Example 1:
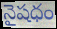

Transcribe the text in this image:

నైషధం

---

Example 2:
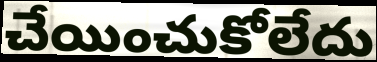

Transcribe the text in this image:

చేయించుకోలేదు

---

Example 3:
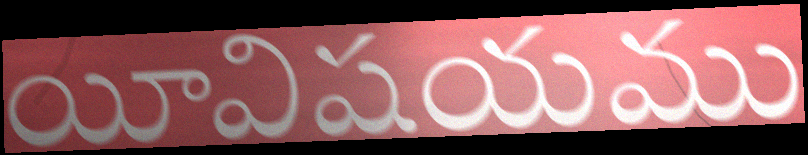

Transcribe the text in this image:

యీవిషయము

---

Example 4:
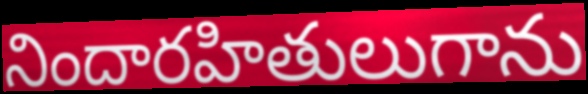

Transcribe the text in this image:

నిందారహితులుగాను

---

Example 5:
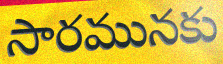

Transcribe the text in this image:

సారమునకు